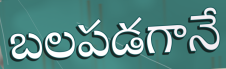
బలపడగానే